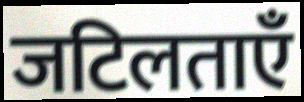
जटिलताएँ